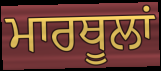
ਮਾਰਥੂਲਾਂ